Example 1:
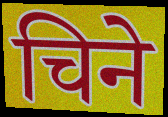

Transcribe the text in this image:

चिने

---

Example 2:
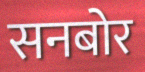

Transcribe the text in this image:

सनबोर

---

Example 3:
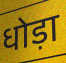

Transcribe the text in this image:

धोड़ा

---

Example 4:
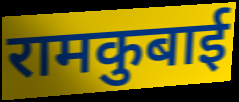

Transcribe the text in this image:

रामकुबाई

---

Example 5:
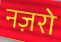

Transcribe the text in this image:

नज़रो